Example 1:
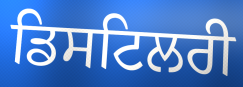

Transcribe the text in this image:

ਡਿਸਟਿਲਰੀ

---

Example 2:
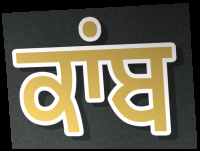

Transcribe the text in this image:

ਕਾਂਬ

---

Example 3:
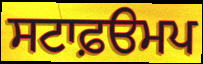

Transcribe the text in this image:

ਸਟਾਫ਼ੳਮਪ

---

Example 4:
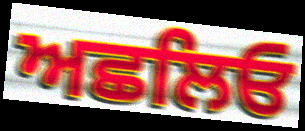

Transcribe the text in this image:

ਅਛਲਿਓ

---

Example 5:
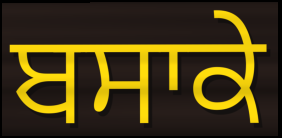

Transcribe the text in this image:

ਬਸਾਕੇ